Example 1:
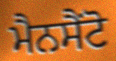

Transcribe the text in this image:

ਮੈਨਸੈਂਟੋ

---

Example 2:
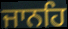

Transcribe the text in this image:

ਜਾਨਹਿ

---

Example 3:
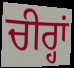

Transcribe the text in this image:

ਚੀਰ੍ਹਾਂ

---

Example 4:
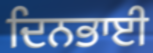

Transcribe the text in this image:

ਦਿਨਭਾਈ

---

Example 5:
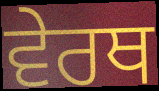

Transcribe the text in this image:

ਵੇਰਥ